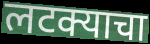
लटक्याचा